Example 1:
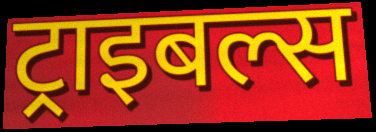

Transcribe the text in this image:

ट्राइबल्स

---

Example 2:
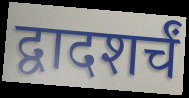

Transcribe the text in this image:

द्वादशर्चं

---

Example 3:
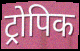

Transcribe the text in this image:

ट्रोपिक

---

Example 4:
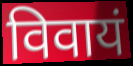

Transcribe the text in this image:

विवायं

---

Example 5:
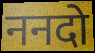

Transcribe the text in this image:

ननदो